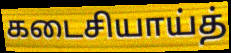
கடைசியாய்த்